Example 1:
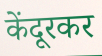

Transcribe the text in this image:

केंदूरकर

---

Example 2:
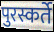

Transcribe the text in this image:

पुरस्कर्ते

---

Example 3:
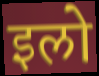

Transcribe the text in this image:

इलो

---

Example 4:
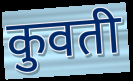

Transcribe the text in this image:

कुवती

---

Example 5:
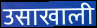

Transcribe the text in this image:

उसाखाली